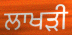
ਲਾਖੜੀ